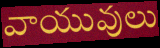
వాయువులు